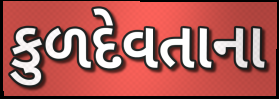
કુળદેવતાના